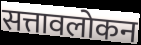
सत्तावलोकन